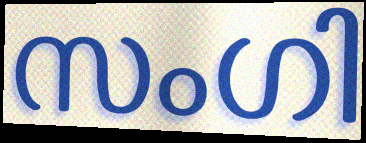
സംഗി